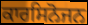
ਕਾਰਸਿਨੋਜਨ